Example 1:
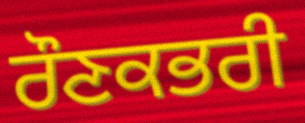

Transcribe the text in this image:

ਰੌਣਕਭਰੀ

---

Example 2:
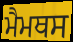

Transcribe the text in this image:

ਮੈਮਥਸ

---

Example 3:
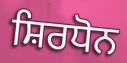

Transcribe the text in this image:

ਸ਼ਿਰਧੋਨ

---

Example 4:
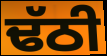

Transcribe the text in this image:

ਢੱਠੀ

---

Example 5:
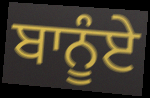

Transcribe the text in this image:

ਬਾਨੂੰਏ